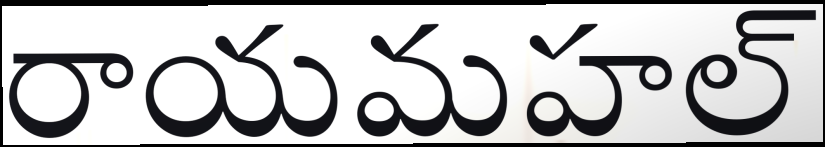
రాయమహల్